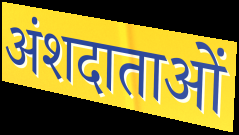
अंशदाताओं